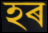
হৰ